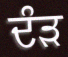
ਦੰੜ